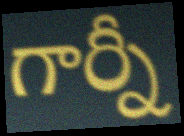
గార్నీ